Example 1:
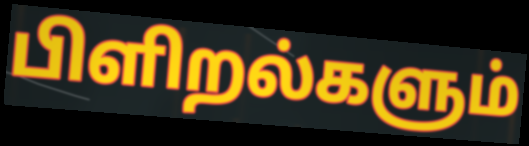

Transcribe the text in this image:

பிளிறல்களும்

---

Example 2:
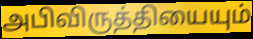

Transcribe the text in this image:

அபிவிருத்தியையும்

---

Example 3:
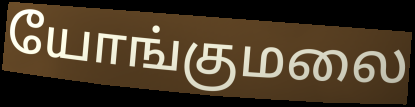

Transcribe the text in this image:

யோங்குமலை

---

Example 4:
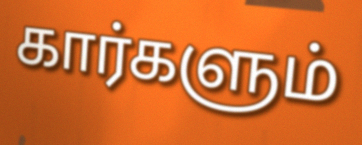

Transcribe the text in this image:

கார்களும்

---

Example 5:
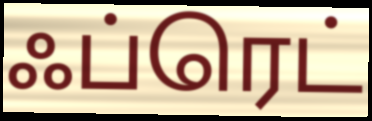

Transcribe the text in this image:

ஃப்ரெட்